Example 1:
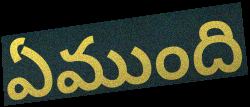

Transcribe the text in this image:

ఏముంది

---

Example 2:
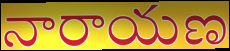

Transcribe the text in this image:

నారాయణ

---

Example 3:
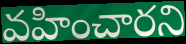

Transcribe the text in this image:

వహించారని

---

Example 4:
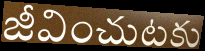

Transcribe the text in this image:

జీవించుటకు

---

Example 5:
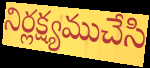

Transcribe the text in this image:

నిర్లక్ష్యముచేసి